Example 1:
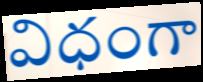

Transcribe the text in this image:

విధంగా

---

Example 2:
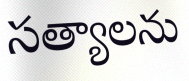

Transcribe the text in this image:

సత్యాలను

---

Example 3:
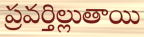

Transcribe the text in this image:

ప్రవర్తిల్లుతాయి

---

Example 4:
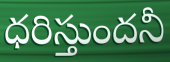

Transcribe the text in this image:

ధరిస్తుందనీ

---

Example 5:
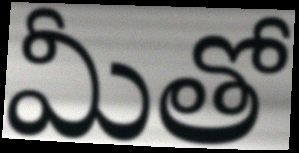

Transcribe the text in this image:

మీతో